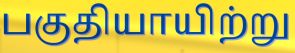
பகுதியாயிற்று